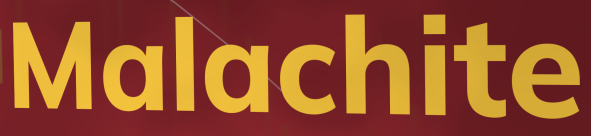
Malachite